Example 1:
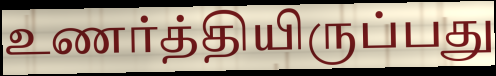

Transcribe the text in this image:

உணர்த்தியிருப்பது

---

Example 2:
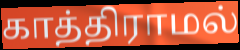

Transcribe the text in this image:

காத்திராமல்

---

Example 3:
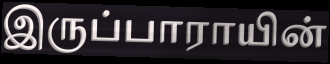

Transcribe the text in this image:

இருப்பாராயின்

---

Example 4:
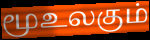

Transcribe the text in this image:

மூஉலகும்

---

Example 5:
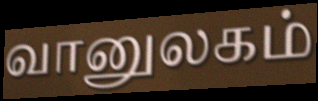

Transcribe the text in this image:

வானுலகம்